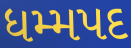
ધમ્મપદ